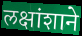
लक्षांशाने